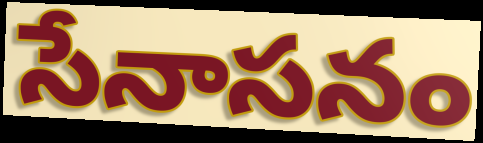
సేనాసనం